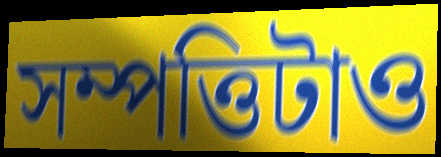
সম্পত্তিটাও